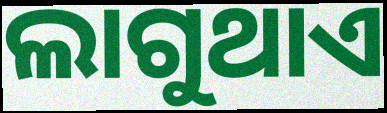
ଲାଗୁଥାଏ